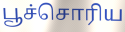
பூச்சொரிய